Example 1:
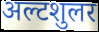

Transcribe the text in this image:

अल्टशुलर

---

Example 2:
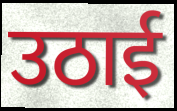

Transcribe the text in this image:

उठाई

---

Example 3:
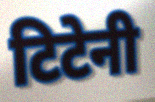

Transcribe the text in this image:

टिटेनी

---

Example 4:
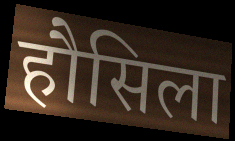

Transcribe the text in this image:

हौसिला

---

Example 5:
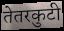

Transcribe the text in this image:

तेतरकुटी